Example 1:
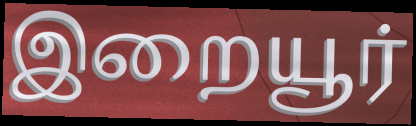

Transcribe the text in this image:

இறையூர்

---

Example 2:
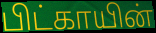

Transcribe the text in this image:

பிட்காயின்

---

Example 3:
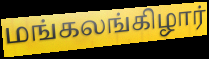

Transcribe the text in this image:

மங்கலங்கிழார்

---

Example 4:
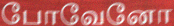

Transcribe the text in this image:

போவேனோ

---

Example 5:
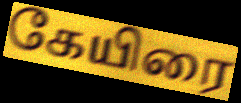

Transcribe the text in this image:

கேயிரை